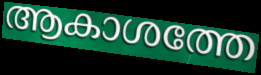
ആകാശത്തേ